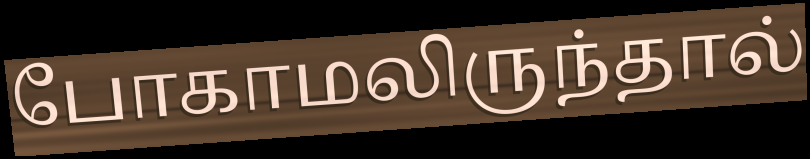
போகாமலிருந்தால்